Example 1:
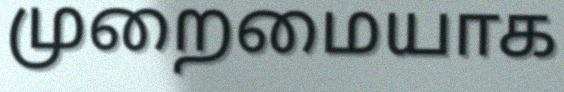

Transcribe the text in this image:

முறைமையாக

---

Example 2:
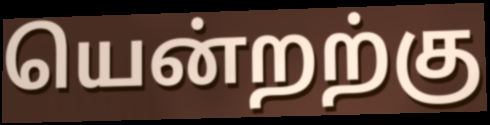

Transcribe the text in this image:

யென்றற்கு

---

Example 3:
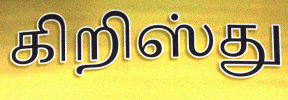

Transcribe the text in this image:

கிறிஸ்து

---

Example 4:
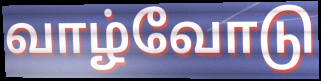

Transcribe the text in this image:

வாழ்வோடு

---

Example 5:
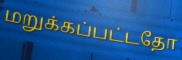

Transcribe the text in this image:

மறுக்கப்பட்டதோ